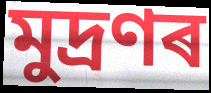
মুদ্ৰণৰ